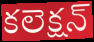
కలెక్షన్